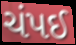
ચંપઈ